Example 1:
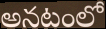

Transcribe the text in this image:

అనటంలో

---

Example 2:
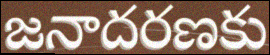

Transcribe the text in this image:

జనాదరణకు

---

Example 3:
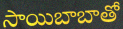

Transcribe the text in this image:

సాయిబాబాతో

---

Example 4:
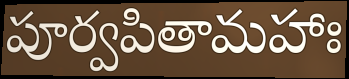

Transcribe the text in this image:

పూర్వపితామహాః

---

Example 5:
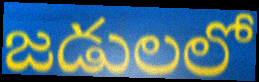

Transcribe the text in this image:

జడులలో